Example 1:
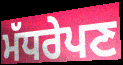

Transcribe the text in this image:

ਮੱਧਰੇਪਣ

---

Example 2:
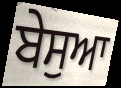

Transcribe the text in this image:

ਬੇਸੁਆ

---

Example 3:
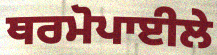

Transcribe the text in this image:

ਥਰਮੋਪਾਈਲੇ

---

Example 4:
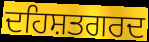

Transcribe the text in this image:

ਦਹਿਸ਼ਤਗਰਦ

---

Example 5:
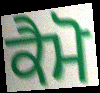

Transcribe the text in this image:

ਕੈਮੋ